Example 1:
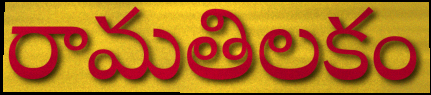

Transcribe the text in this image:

రామతిలకం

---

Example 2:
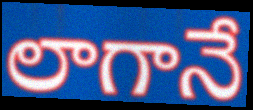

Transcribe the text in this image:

లాగానే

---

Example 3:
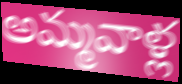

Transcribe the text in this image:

అమ్మవాళ్ల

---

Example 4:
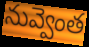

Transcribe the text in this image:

నువ్వెంత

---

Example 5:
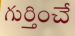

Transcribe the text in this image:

గుర్తించే